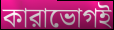
কারাভোগই